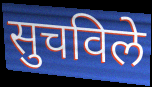
सुचविले